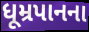
ધૂમ્રપાનના